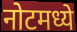
नोटमध्ये